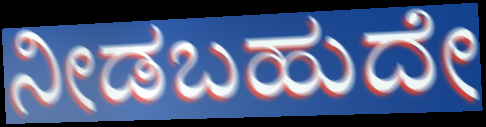
ನೀಡಬಹುದೇ